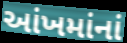
આંખમાંનાં